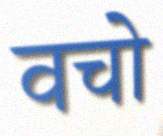
वचो